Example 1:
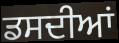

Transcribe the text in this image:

ਡਸਦੀਆਂ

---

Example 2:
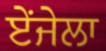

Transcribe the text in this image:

ਏਂਜੇਲਾ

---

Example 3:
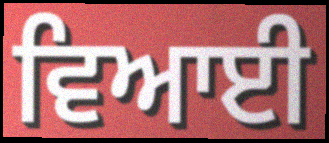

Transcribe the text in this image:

ਵਿਆਈ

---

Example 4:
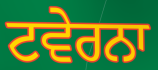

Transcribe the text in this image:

ਟਵੇਰਨਾ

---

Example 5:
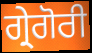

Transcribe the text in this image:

ਗ੍ਰੇਗੋਰੀ